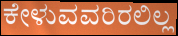
ಕೇಳುವವರಿರಲಿಲ್ಲ